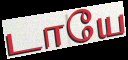
டாயே